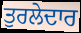
ਤੁਰਲੇਦਾਰ